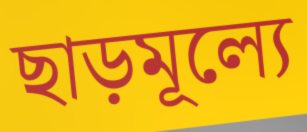
ছাড়মূল্যে